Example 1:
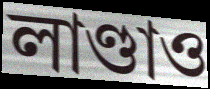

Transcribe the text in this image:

লাণ্ডাও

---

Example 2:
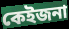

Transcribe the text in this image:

কেইজনা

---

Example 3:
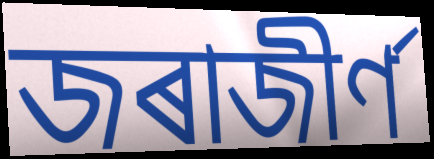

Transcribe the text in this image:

জৰাজীৰ্ণ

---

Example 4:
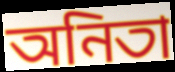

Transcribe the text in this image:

অনিতা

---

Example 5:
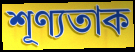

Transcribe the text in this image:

শূণ্যতাক